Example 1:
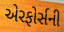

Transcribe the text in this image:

એરફોર્સની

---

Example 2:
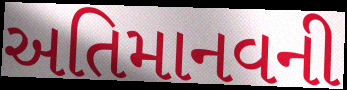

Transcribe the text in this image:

અતિમાનવની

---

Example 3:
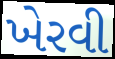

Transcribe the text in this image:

ખેરવી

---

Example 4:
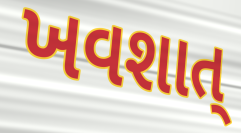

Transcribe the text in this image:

ખવશાત્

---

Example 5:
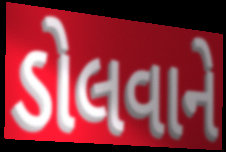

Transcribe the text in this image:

ડોલવાને